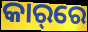
କାର୍‌ରେ